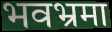
भवभ्रमा